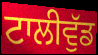
ਟਾਲੀਵੁੱਡ